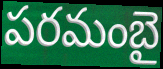
పరమంబై